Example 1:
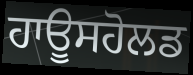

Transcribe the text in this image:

ਹਾਊਸਹੋਲਡ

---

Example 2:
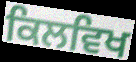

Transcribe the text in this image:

ਕਿਲਵਿਖ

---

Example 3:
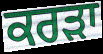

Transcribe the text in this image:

ਕਰੜਾ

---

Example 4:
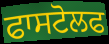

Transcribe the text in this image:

ਫਾਸਟੋਲਫ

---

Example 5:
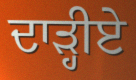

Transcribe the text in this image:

ਦਾੜ੍ਹੀਏ